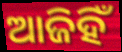
ଆଜିହିଁ